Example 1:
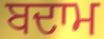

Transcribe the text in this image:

ਬਦਾਮ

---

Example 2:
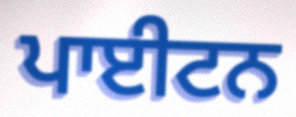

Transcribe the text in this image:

ਪਾਈਟਨ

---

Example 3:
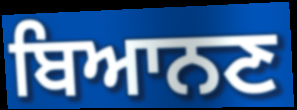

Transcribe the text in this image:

ਬਿਆਨਣ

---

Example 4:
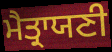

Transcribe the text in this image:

ਮੈਤ੍ਰਾਯਣੀ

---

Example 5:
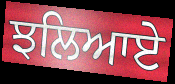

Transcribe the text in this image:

ਝਲਿਆਏ